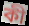
কী